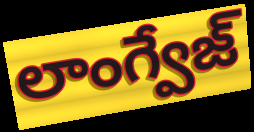
లాంగ్వేజ్